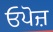
ਓਪੋਜ਼